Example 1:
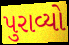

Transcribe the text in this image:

પુરાવ્યો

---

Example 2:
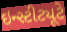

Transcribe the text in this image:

ઇન્સ્ટીટ્યૂટે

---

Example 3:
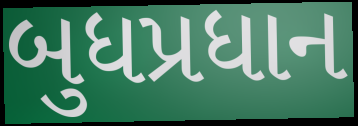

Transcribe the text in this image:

બુધપ્રધાન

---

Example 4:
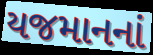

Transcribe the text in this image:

યજમાનનાં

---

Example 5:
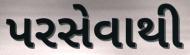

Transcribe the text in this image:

પરસેવાથી